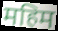
महिम